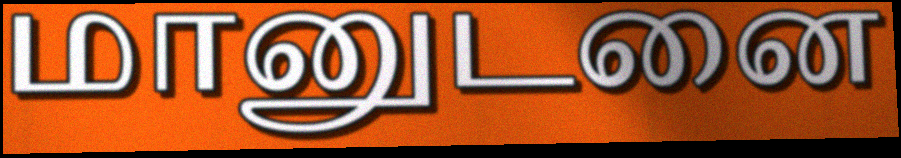
மானுடனை